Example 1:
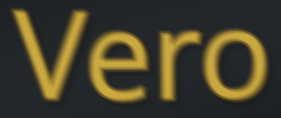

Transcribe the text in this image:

Vero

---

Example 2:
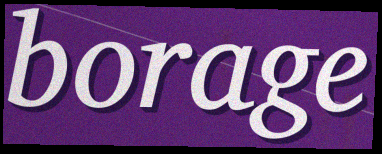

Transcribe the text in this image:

borage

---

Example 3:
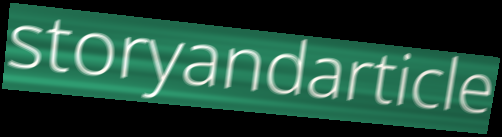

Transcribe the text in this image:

storyandarticle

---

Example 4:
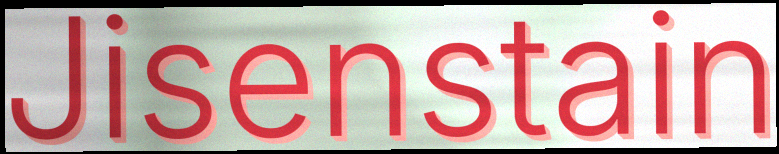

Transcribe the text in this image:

Jisenstain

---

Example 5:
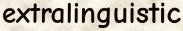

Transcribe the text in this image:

extralinguistic